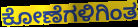
ಕೋಣೆಗಳಿಗಿಂತ